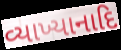
વ્યાખ્યાનાદિ